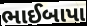
ભાઈબાપા